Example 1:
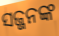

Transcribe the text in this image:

ସଜ୍ଜନଙ୍କ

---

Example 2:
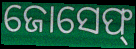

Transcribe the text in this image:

ଜୋସେଫ୍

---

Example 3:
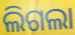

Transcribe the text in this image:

ଲିଗଲା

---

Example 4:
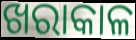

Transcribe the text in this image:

ଖରାକାଳ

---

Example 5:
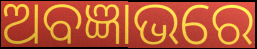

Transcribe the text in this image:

ଅବଜ୍ଞାଭରେ